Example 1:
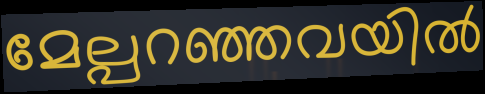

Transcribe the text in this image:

മേല്പറഞ്ഞവയിൽ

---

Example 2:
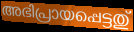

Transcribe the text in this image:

അഭിപ്രായപ്പെട്ടതു്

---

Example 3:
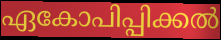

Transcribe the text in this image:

ഏകോപിപ്പിക്കൽ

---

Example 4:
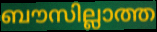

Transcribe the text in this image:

ബൗസില്ലാത്ത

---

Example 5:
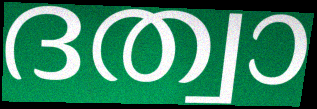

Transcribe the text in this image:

ദത്വാ